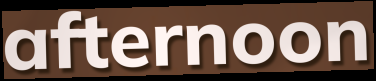
afternoon